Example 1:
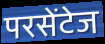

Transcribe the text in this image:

परसेंटेज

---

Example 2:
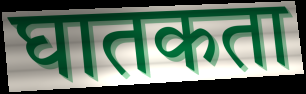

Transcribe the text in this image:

घातकता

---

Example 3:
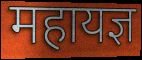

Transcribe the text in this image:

महायज्ञ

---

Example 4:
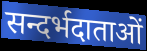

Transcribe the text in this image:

सन्दर्भदाताओं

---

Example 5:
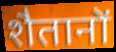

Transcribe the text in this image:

शैतानों